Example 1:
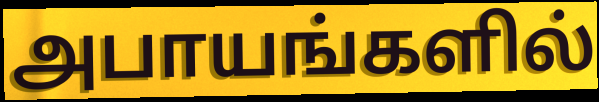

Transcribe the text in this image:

அபாயங்களில்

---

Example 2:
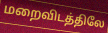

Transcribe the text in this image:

மறைவிடத்திலே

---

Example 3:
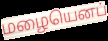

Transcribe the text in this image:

மழையெனப்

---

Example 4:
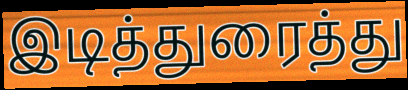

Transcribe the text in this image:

இடித்துரைத்து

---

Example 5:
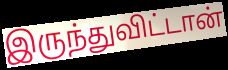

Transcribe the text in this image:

இருந்துவிட்டான்